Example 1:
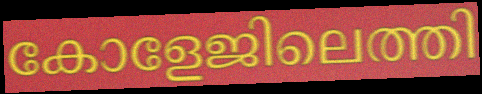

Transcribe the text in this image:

കോളേജിലെത്തി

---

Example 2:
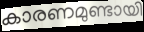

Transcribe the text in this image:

കാരണമുണ്ടായി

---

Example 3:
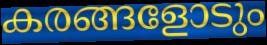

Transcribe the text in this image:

കരങ്ങളോടും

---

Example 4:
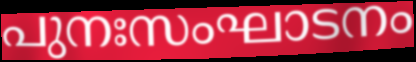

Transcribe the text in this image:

പുനഃസംഘാടനം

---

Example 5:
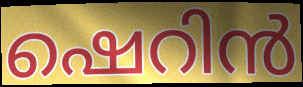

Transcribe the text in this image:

ഷെറിൻ